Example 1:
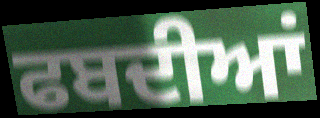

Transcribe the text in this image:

ਫਬਦੀਆਂ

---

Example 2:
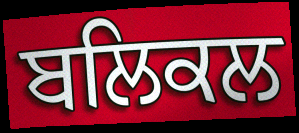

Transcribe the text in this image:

ਬਲਿਕਲ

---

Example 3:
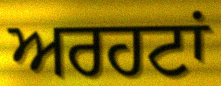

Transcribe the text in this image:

ਅਰਹਟਾਂ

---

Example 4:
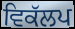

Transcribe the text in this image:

ਵਿਕੱਲਪ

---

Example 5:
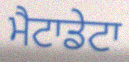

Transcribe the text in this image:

ਮੈਟਾਡੇਟਾ